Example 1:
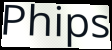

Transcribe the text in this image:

Phips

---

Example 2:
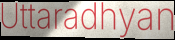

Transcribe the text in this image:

Uttaradhyan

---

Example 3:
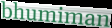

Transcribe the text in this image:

bhumiman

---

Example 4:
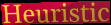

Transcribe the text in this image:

Heuristic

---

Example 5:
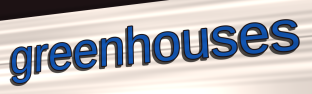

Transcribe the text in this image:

greenhouses